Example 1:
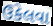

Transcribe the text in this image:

ઉકેલવા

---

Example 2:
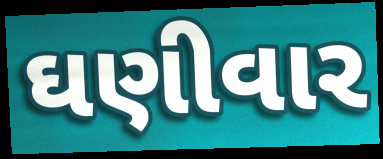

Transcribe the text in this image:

ઘણીવાર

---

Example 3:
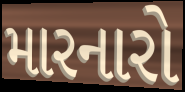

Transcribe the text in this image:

મારનારો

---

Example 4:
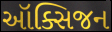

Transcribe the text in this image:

ઑક્સિજન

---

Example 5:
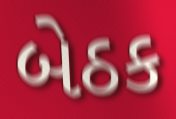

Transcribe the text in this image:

બેઠક